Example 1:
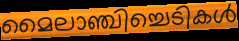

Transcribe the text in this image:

മൈലാഞ്ചിച്ചെടികൾ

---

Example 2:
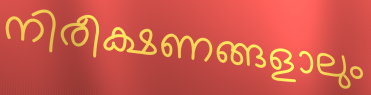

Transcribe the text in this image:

നിരീക്ഷണങ്ങളാലും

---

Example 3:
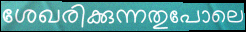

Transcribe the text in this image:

ശേഖരിക്കുന്നതുപോലെ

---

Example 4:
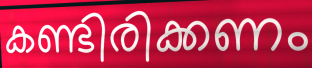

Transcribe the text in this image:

കണ്ടിരിക്കണം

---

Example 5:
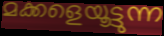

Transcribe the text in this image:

മക്കളെയൂട്ടുന്ന